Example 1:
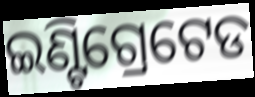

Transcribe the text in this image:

ଇଣ୍ଟିଗ୍ରେଟେଡ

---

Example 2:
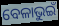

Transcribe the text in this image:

ବେଳାଭୁଇଁ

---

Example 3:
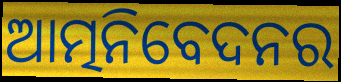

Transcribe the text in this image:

ଆତ୍ମନିବେଦନର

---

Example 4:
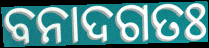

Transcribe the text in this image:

ବନାଦଗତଃ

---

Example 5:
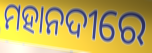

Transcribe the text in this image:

ମହାନଦୀରେ